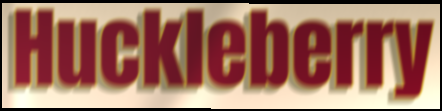
Huckleberry